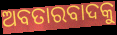
ଅବତାରବାଦକୁ